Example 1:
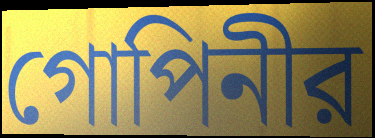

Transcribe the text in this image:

গোপিনীর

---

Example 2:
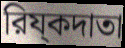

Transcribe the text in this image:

রিয্কদাতা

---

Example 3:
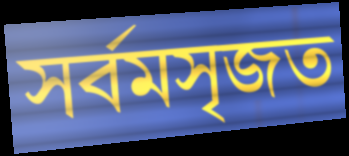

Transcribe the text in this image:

সর্বমসৃজত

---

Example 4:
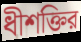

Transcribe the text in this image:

ধীশক্তির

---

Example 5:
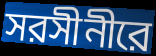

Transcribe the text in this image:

সরসীনীরে